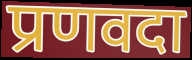
प्रणवदा